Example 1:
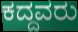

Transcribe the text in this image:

ಕದ್ದವರು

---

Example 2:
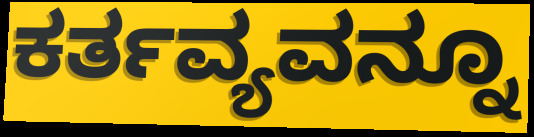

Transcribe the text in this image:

ಕರ್ತವ್ಯವನ್ನೂ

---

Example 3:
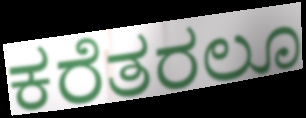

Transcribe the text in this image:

ಕರೆತರಲೂ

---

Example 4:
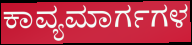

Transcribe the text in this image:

ಕಾವ್ಯಮಾರ್ಗಗಳ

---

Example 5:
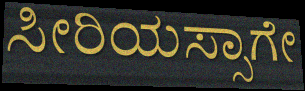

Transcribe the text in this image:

ಸೀರಿಯಸ್ಸಾಗೇ